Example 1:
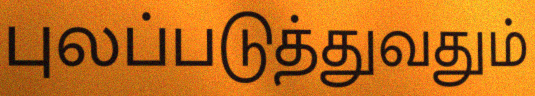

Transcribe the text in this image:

புலப்படுத்துவதும்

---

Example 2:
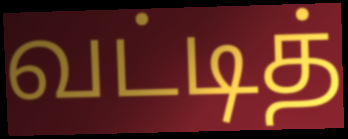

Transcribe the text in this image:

வட்டித்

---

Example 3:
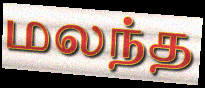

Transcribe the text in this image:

மலந்த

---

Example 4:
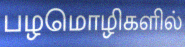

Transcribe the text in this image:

பழமொழிகளில்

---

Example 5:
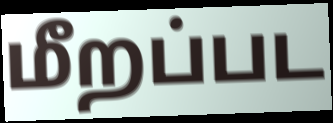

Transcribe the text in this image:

மீறப்பட